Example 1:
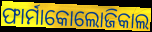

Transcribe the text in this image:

ଫାର୍ମାକୋଲୋଜିକାଲ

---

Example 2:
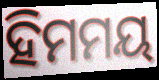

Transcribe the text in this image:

ହିମମୟ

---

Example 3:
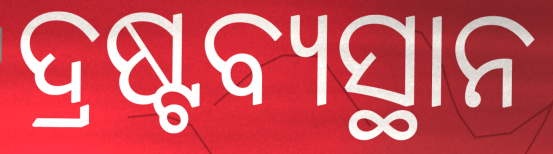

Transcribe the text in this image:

ଦ୍ରଷ୍ଟବ୍ୟସ୍ଥାନ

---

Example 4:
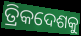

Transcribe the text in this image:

ତ୍ରିକଦେଶକୁ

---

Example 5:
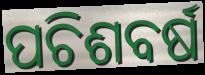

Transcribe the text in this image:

ପଚିଶବର୍ଷ